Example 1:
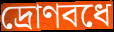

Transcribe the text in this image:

দ্রোণবধে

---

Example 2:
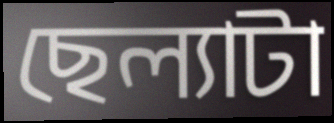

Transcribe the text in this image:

ছেল্যাটা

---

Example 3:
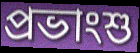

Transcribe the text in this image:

প্রভাংশু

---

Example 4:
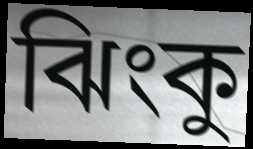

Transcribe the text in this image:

ঝিংকু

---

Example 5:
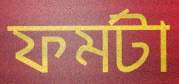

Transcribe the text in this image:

ফর্মটা